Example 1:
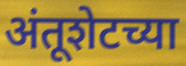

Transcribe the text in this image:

अंतूशेटच्या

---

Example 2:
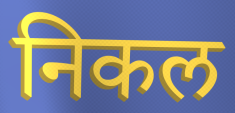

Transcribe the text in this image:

निकल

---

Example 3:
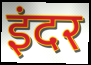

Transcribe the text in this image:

इंदर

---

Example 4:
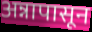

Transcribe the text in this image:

अन्नापासून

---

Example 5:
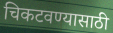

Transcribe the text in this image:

चिकटवण्यासाठी